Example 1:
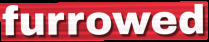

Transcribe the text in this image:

furrowed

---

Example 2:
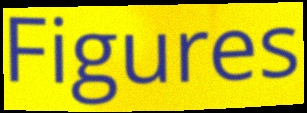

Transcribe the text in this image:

Figures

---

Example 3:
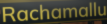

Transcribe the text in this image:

Rachamallu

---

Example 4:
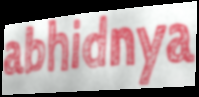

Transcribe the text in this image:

abhidnya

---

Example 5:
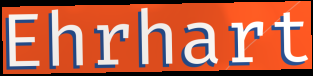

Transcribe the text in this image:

Ehrhart